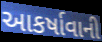
આકર્ષાવાની